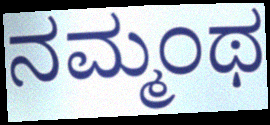
ನಮ್ಮಂಥ